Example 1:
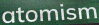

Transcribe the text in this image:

atomism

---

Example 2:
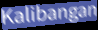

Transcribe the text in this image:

Kalibangan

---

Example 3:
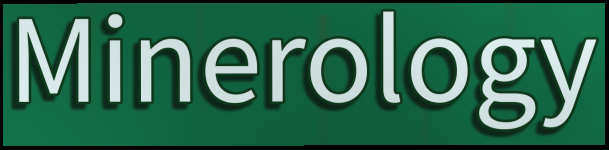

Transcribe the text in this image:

Minerology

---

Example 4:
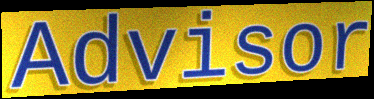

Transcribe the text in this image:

Advisor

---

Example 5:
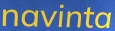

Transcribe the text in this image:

navinta